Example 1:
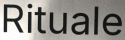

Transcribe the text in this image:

Rituale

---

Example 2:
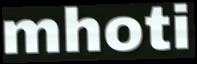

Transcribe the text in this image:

mhoti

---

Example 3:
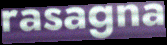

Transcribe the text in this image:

rasagna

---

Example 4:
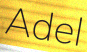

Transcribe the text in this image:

Adel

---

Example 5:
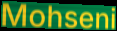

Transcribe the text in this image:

Mohseni